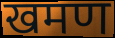
खमण